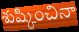
శుష్కించినా